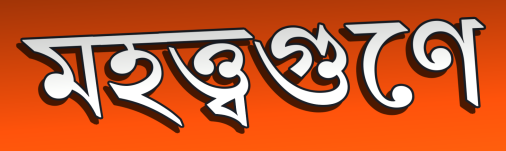
মহত্ত্বগুণে